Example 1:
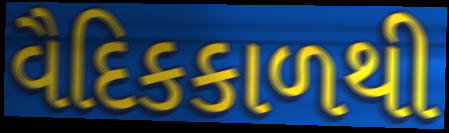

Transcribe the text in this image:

વૈદિકકાળથી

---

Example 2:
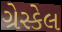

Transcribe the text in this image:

ગ્રેસ્કેલ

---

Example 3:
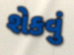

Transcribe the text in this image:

શેકવું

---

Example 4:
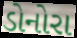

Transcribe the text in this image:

ડોનોરા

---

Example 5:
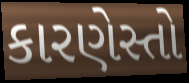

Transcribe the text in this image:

કારણેસ્તો